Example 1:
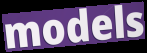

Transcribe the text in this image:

models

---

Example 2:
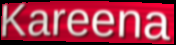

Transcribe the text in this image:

Kareena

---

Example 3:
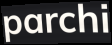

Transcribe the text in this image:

parchi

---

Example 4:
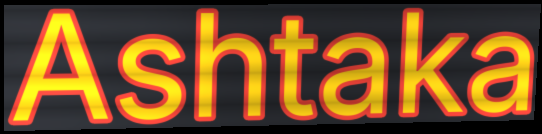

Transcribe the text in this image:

Ashtaka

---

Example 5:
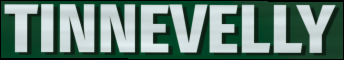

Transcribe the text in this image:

TINNEVELLY